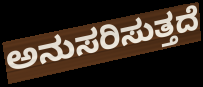
ಅನುಸರಿಸುತ್ತದೆ